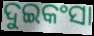
ଦୁଇକଂସା